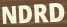
NDRD